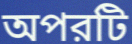
অপরটি